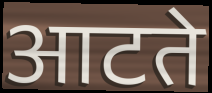
आटते